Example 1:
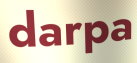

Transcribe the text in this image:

darpa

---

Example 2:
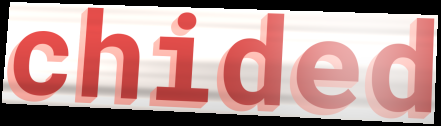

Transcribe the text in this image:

chided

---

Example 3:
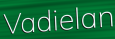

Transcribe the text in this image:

Vadielan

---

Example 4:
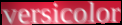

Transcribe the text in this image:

versicolor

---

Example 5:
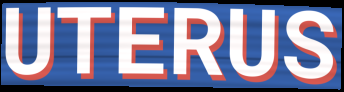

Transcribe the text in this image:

UTERUS